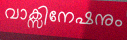
വാക്സിനേഷനും